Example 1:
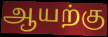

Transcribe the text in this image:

ஆயற்கு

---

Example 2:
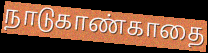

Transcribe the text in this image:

நாடுகாண்காதை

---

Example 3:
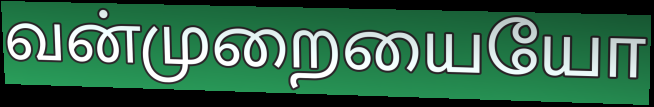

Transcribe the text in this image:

வன்முறையையோ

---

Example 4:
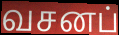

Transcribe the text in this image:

வசனப்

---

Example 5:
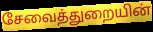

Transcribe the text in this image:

சேவைத்துறையின்